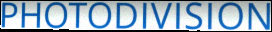
PHOTODIVISION